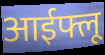
आईफ्लू